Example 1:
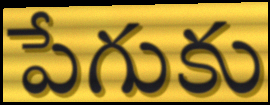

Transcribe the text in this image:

పేగుకు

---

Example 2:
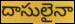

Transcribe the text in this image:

దాసులైనా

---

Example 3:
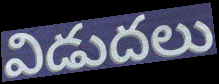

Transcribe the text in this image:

విడుదలు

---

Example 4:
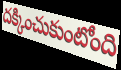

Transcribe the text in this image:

దక్కించుకుంటోంది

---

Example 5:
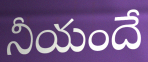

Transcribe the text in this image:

నీయందే